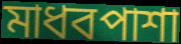
মাধবপাশা